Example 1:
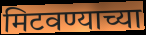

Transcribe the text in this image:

मिटवण्याच्या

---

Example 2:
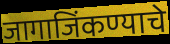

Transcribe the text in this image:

जागाजिंकण्याचे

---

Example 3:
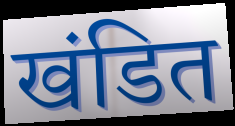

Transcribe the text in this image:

खंडित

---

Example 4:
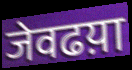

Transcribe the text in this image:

जेवढय़ा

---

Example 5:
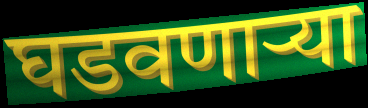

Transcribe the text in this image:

घडवणाऱ्या